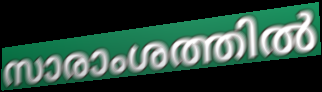
സാരാംശത്തിൽ